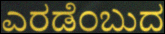
ಎರಡೆಂಬುದ